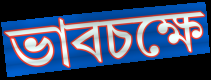
ভাবচক্ষে